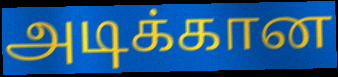
அடிக்கான